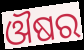
ଔଷର